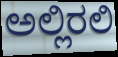
ಅಲ್ಲಿರಲಿ